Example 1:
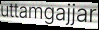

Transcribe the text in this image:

uttamgajjar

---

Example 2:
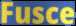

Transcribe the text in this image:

Fusce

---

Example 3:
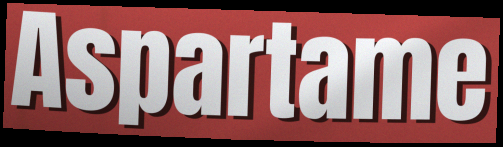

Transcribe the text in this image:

Aspartame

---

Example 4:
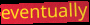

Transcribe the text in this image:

eventually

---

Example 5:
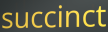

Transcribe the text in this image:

succinct